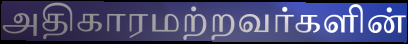
அதிகாரமற்றவர்களின்